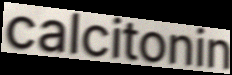
calcitonin